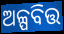
ଅଳ୍ପବିତ୍ତ